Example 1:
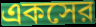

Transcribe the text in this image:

একসের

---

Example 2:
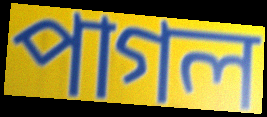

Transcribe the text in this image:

পাগল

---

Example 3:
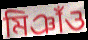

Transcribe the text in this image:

মিঞাঁও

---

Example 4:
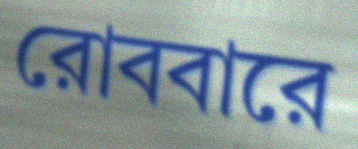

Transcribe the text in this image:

রোববারে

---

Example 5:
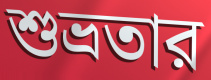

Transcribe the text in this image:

শুভ্রতার